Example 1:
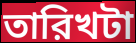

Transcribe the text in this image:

তারিখটা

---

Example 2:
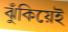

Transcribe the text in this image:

ঝুঁকিয়েই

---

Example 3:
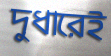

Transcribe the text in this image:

দুধারেই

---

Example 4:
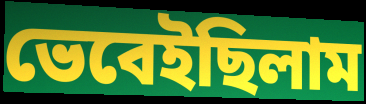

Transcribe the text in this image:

ভেবেইছিলাম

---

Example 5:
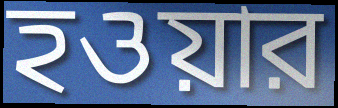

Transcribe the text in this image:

হওয়ার